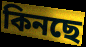
কিনছে